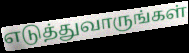
எடுத்துவாருங்கள்